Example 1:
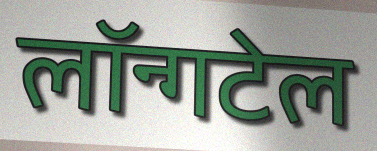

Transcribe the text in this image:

लॉन्गटेल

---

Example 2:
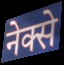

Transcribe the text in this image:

नेक्से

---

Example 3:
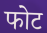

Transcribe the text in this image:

फोट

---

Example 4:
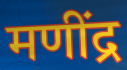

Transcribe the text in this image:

मणींद्र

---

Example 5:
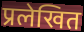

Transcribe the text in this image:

प्रलेखित